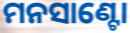
ମନସାଣ୍ଟୋ